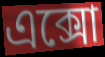
এক্সো